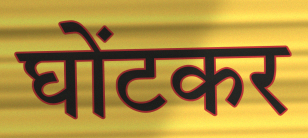
घोंटकर